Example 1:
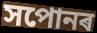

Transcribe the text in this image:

সপোনৰ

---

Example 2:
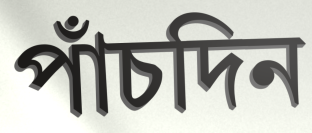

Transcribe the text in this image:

পাঁচদিন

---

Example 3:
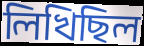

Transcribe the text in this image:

লিখিছিল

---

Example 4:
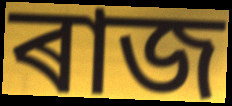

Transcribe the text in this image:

ৰাজ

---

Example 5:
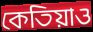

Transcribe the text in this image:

কেতিয়াও